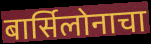
बार्सिलोनाचा